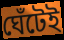
ঘেঁটেই